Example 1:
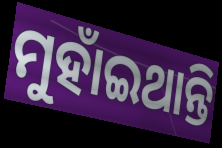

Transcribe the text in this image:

ମୁହାଁଇଥାନ୍ତି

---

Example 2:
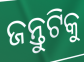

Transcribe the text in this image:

ଜନ୍ତୁଟିକୁ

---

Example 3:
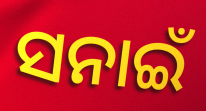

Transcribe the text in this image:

ସନାଇଁ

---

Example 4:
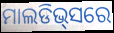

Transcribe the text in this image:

ମାଲଡିଭ୍‌ସରେ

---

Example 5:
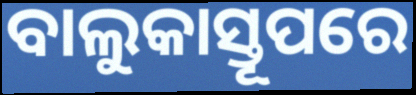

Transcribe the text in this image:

ବାଲୁକାସ୍ତୂପରେ